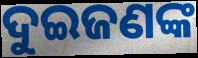
ଦୁଇଜଣଙ୍କ